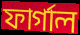
ফার্গাল